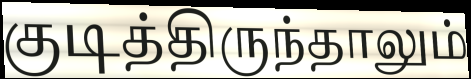
குடித்திருந்தாலும்